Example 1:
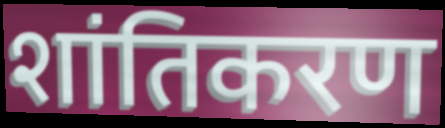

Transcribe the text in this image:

शांतिकरण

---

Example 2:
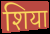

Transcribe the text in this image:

शिया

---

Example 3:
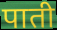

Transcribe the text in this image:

पाती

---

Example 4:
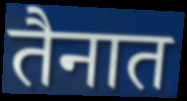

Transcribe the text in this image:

तैनात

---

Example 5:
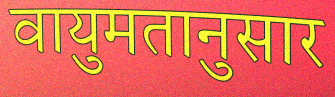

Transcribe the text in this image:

वायुमतानुसार